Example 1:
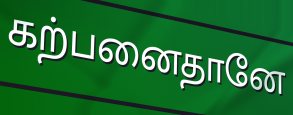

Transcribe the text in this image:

கற்பனைதானே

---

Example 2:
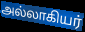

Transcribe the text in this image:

அல்லாகியர்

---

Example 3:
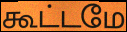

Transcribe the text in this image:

கூட்டமே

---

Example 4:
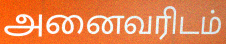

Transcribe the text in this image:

அனைவரிடம்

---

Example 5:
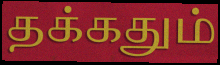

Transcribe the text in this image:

தக்கதும்